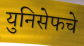
युनिसेफचे